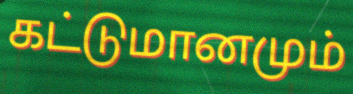
கட்டுமானமும்